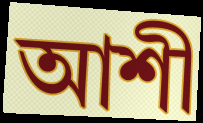
আশী